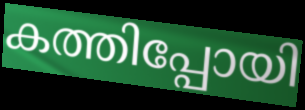
കത്തിപ്പോയി